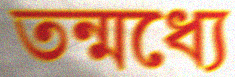
তন্মধ্যে